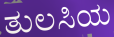
ತುಲಸಿಯ